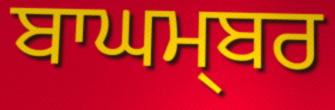
ਬਾਘਮ੍ਬਰ